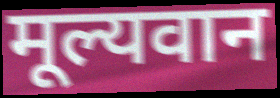
मूल्यवान